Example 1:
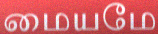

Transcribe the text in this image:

மையமே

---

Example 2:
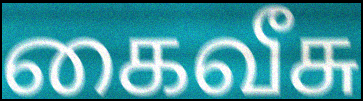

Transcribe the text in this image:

கைவீசு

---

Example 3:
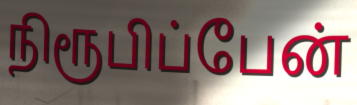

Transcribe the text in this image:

நிரூபிப்பேன்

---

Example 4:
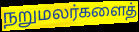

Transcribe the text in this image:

நறுமலர்களைத்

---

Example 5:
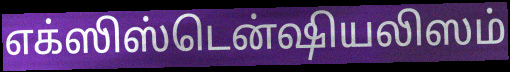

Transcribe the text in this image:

எக்ஸிஸ்டென்ஷியலிஸம்